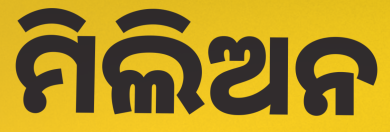
ମିଲିଅନ